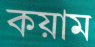
কয়াম